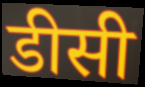
डीसी